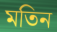
মতিন